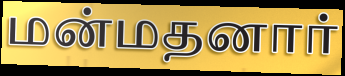
மன்மதனார்